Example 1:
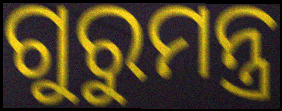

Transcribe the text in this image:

ଗୁରୁମନ୍ତ୍ର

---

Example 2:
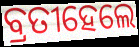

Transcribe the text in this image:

ବ୍ରତୀହେଲେ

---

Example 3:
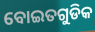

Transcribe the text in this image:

ବୋଇତଗୁଡିକ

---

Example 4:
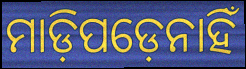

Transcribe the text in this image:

ମାଡ଼ିପଡ଼େନାହିଁ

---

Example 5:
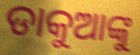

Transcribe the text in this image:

ଡାକୁଆଙ୍କୁ